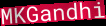
MKGandhi